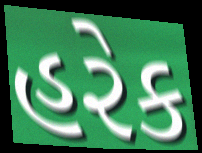
હરેક